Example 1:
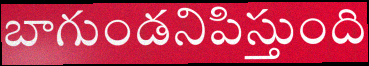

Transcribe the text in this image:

బాగుండనిపిస్తుంది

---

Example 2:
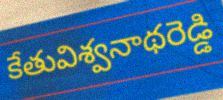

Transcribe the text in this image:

కేతువిశ్వనాథరెడ్డి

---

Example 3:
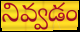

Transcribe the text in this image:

నివ్వడం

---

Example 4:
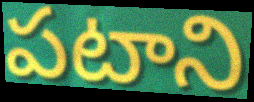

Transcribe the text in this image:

పటాని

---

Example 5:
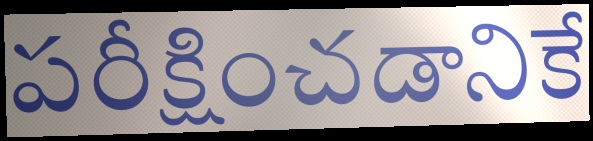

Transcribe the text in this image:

పరీక్షించడానికే